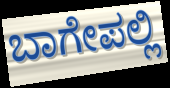
ಬಾಗೇಪಲ್ಲಿ